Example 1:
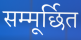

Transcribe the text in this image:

सम्मूर्छित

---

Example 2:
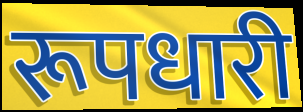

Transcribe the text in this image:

रूपधारी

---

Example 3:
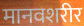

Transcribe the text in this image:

मानवशरीर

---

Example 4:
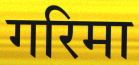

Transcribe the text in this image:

गरिमा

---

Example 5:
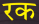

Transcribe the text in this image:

रक